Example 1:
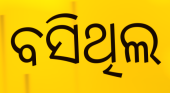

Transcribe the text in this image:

ବସିଥିଲ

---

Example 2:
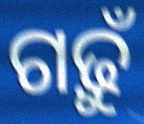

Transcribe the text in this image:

ଗଢ଼ୁଁ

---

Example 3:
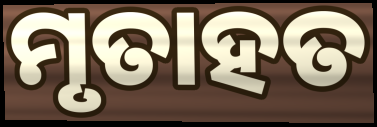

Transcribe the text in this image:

ମୃତାହତ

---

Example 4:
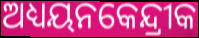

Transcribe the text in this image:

ଅଧ୍ୟୟନକେନ୍ଦ୍ରୀକ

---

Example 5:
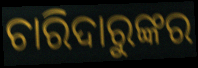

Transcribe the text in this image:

ଚାରିଦାରୁଙ୍କର